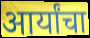
आर्यांचा